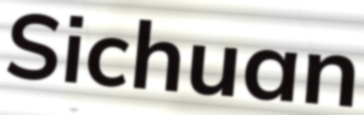
Sichuan